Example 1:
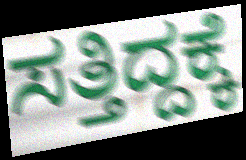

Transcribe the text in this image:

ಸತ್ತಿದ್ದಕ್ಕೆ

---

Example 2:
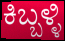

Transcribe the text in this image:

ಕಿಬ್ಬಳ್ಳಿ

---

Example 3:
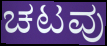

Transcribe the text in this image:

ಚಟವು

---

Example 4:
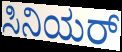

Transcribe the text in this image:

ಸಿನಿಯರ್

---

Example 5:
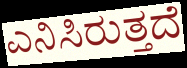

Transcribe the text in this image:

ಎನಿಸಿರುತ್ತದೆ